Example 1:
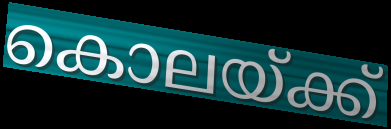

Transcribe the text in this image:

കൊലയ്ക്ക്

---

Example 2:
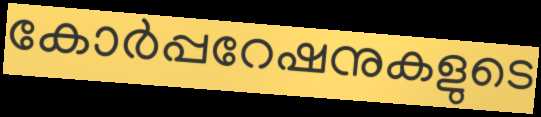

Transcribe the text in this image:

കോർപ്പറേഷനുകളുടെ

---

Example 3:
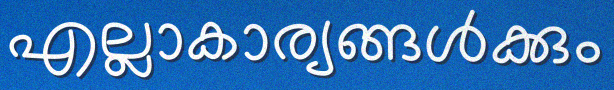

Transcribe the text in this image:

എല്ലാകാര്യങ്ങൾക്കും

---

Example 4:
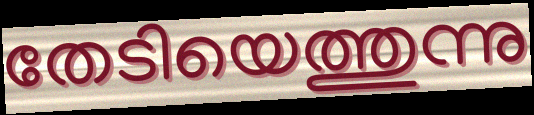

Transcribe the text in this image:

തേടിയെത്തുന്നു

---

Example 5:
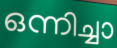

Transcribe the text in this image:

ഒന്നിച്ചാ